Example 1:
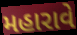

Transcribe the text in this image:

મહારાવે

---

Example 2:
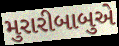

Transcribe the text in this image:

મુરારીબાબુએ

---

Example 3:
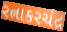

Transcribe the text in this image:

રત્નાકરચંદ્ર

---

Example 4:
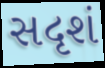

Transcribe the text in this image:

સદૃશં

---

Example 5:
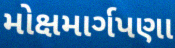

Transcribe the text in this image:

મોક્ષમાર્ગપણા